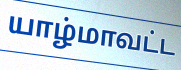
யாழ்மாவட்ட